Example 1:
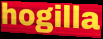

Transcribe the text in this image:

hogilla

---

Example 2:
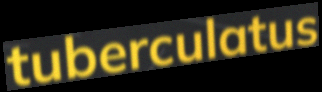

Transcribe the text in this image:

tuberculatus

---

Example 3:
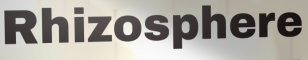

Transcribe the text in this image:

Rhizosphere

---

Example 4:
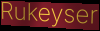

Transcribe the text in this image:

Rukeyser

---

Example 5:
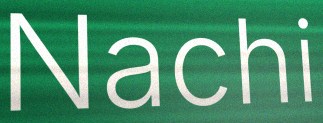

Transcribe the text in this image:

Nachi